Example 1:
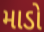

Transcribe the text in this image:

માડો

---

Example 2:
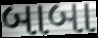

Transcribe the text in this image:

બાબા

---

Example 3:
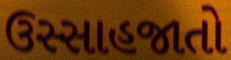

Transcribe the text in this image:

ઉસ્સાહજાતો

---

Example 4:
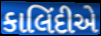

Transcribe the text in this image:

કાલિંદીએ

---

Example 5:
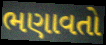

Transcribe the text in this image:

ભણાવતો